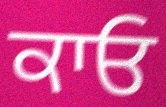
ਕਾਓ